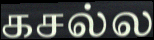
கசல்ல